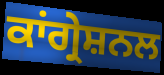
ਕਾਂਗ੍ਰੇਸ਼ਨਲ